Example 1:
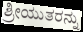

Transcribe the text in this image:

ಶ್ರೀಯುತರನ್ನು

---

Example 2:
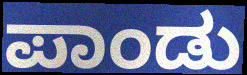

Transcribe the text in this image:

ಪಾಂಡು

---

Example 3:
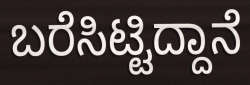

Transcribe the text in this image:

ಬರೆಸಿಟ್ಟಿದ್ದಾನೆ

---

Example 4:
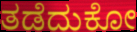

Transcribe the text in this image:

ತಡೆದುಕೋ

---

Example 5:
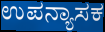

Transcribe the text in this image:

ಉಪನ್ಯಾಸಕ